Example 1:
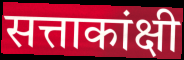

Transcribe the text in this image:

सत्ताकांक्षी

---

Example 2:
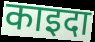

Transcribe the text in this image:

काइदा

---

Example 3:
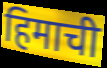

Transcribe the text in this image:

हिमाची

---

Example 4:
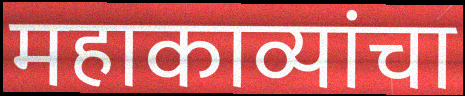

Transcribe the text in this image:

महाकाव्यांचा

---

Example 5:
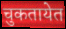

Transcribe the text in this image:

चुकतायेत